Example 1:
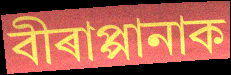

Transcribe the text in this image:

বীৰাপ্পানাক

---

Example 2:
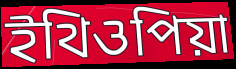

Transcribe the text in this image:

ইথিওপিয়া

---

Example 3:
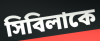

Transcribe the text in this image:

সিবিলাকে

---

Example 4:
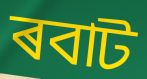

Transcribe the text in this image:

ৰবাট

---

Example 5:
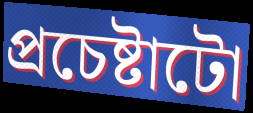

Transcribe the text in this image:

প্ৰচেষ্টাটো